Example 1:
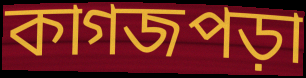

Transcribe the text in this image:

কাগজপড়া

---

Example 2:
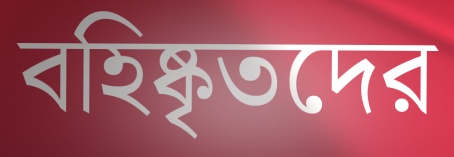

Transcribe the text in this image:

বহিষ্কৃতদের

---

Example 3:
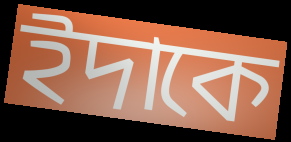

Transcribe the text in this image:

ইদাকে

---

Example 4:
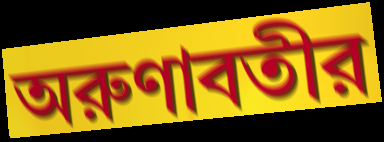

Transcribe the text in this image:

অরুণাবতীর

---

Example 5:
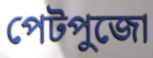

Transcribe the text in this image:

পেটপুজো